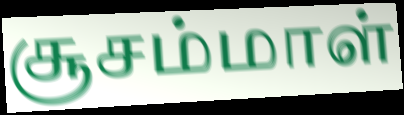
சூசம்மாள்